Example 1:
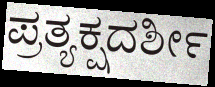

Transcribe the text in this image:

ಪ್ರತ್ಯಕ್ಷದರ್ಶೀ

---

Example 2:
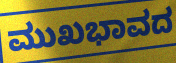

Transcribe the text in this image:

ಮುಖಭಾವದ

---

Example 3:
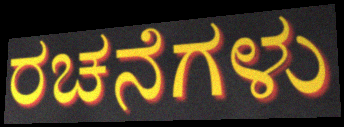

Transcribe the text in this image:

ರಚನೆಗಳು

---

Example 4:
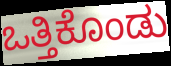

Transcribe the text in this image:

ಒತ್ತಿಕೊಂಡು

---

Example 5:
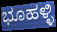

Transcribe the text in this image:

ಭೂಹಳ್ಳಿ